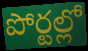
పోర్టల్లో